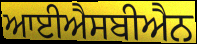
ਆਈਐਸਬੀਐਨ